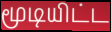
மூடியிட்ட